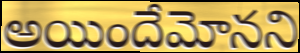
అయిందేమోనని